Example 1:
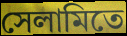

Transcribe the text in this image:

সেলামিতে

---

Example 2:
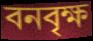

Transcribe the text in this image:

বনবৃক্ষ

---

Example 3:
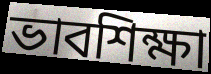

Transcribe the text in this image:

ভাবশিক্ষা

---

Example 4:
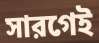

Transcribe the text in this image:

সারগেই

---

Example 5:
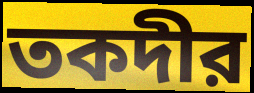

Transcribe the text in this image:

তকদীর